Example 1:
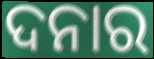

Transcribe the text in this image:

ଦନାର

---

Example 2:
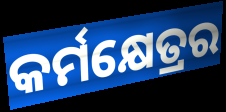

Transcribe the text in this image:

କର୍ମକ୍ଷେତ୍ରର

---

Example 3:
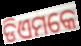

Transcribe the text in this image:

ଡିଏମକେ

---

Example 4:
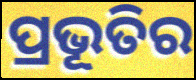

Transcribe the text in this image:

ପ୍ରଭୂତିର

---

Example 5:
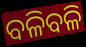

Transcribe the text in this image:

ବଳିବଳି